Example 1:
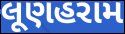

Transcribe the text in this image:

લૂણહરામ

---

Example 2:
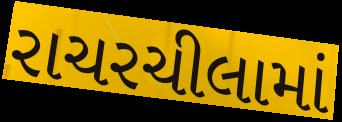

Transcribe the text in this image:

રાચરચીલામાં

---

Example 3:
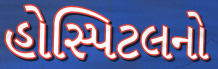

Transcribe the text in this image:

હોસ્પિટલનો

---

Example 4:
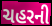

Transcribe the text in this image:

ચહરની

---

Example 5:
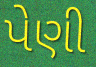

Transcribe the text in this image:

પેણી